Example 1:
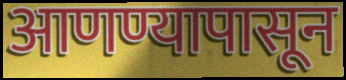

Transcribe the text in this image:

आणण्यापासून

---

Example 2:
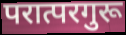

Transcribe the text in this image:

परात्परगुरू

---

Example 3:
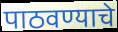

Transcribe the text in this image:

पाठवण्याचे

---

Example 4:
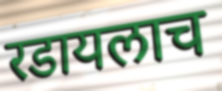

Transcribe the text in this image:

रडायलाच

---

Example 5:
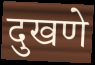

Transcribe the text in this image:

दुखणे